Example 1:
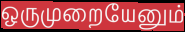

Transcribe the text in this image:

ஒருமுறையேனும்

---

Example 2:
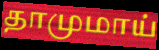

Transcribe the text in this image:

தாமுமாய்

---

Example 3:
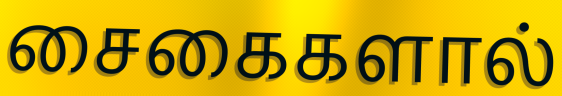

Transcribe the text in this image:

சைகைகளால்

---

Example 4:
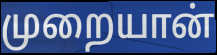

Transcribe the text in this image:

முறையான்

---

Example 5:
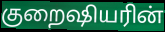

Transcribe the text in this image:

குறைஷியரின்